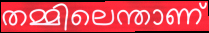
തമ്മിലെന്താണ്